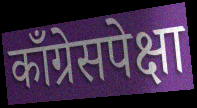
काँग्रेसपेक्षा